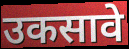
उकसावे